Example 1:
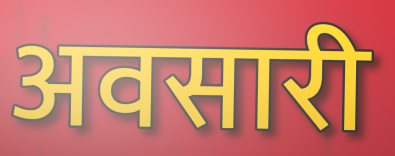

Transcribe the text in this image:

अवसारी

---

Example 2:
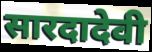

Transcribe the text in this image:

सारदादेवी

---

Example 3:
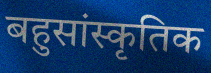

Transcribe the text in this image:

बहुसांस्कृतिक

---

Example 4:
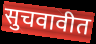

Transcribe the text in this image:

सुचवावीत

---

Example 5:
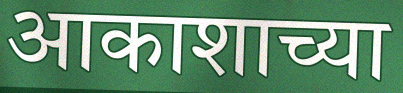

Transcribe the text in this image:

आकाशाच्या